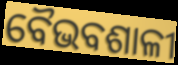
ବୈଭବଶାଳୀ